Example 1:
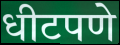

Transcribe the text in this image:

धीटपणे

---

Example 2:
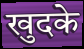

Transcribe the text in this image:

खुदके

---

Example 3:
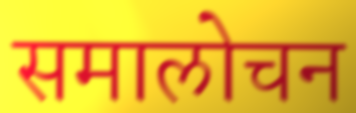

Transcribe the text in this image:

समालोचन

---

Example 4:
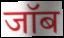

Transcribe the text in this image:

जॉब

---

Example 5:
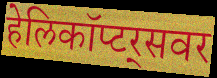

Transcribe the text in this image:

हेलिकॉप्टर्सवर